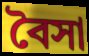
বৈসা